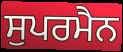
ਸੁਪਰਮੈਨ